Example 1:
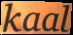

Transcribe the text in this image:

kaal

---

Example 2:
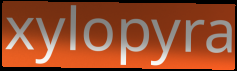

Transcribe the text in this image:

xylopyra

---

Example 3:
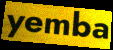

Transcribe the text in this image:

yemba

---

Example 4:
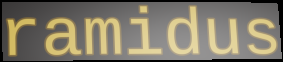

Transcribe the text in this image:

ramidus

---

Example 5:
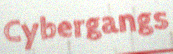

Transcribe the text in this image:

Cybergangs